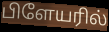
பிளேயரில்